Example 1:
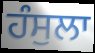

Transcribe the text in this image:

ਹੰਸੁਲਾ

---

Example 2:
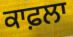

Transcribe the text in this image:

ਕਾਫ਼ਲਾ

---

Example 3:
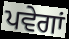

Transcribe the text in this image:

ਪਵੇਗਾਂ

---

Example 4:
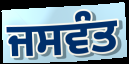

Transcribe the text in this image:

ਜਸਵੰਤ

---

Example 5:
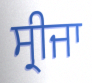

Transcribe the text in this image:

ਸ੍ਰੀਜਾ